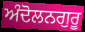
ਅੰਦੋਲਨਗੁਰੂ